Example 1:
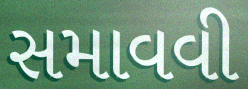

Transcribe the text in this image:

સમાવવી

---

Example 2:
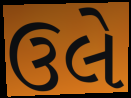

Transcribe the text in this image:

ઉલે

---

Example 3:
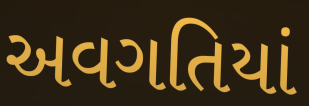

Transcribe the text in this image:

અવગતિયાં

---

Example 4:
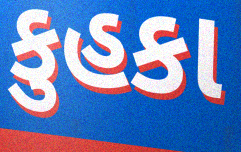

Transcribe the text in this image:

કુહકા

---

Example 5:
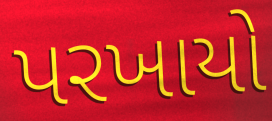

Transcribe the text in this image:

પરખાયો